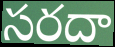
సరదా